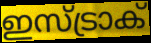
ഇസ്ട്രാക്